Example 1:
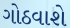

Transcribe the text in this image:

ગોઠવાશે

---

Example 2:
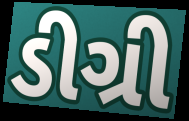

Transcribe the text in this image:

ડીગ્રી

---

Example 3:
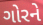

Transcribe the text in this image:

ગોરને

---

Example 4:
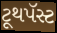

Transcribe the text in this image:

ટૂથપૅસ્ટ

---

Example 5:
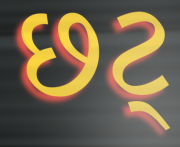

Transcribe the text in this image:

છટ્